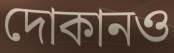
দোকানও